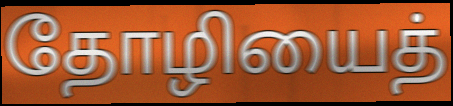
தோழியைத்